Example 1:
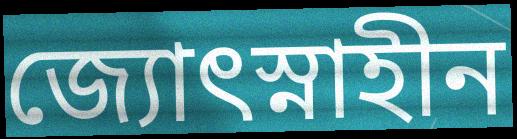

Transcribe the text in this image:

জ্যোৎস্নাহীন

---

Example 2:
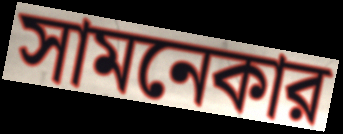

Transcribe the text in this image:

সামনেকার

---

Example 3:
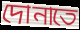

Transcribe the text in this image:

দোনাতে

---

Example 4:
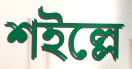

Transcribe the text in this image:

শইল্লে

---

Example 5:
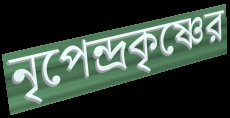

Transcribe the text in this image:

নৃপেন্দ্রকৃষ্ণের